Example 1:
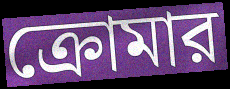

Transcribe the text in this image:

ক্রোমার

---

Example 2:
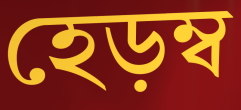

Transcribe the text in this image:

হেড়ম্ব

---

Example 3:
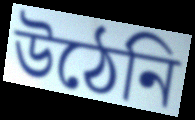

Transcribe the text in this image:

উঠেনি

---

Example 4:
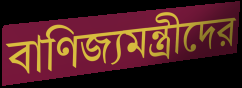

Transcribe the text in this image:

বাণিজ্যমন্ত্রীদের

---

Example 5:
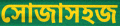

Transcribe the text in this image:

সোজাসহজ